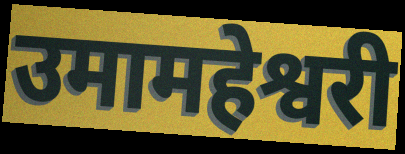
उमामहेश्वरी